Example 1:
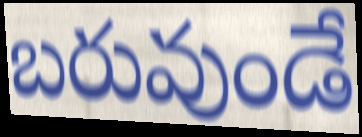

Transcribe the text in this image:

బరువుండే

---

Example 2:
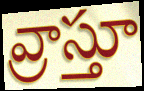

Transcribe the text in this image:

వ్రాస్తూ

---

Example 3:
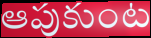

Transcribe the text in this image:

ఆపుకుంట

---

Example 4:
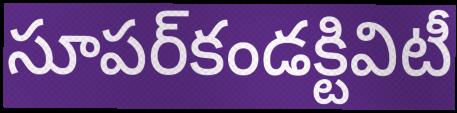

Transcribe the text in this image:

సూపర్‌కండక్టివిటీ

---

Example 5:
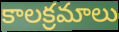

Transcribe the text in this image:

కాలక్రమాలు